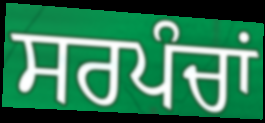
ਸਰਪੰਚਾਂ